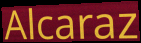
Alcaraz